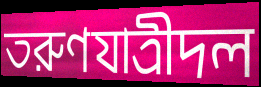
তরুণযাত্রীদল